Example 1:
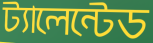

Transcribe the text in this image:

ট্যালেন্টেড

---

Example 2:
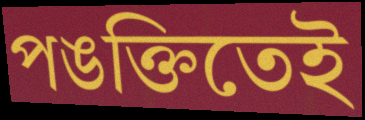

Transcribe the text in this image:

পঙক্তিতেই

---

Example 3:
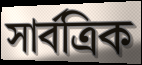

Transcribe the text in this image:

সার্বত্রিক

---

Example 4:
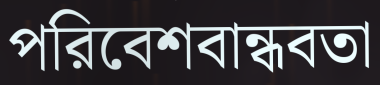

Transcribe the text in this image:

পরিবেশবান্ধবতা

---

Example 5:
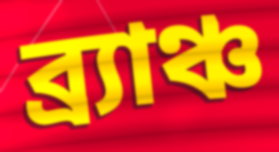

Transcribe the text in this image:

ব্র্যাঞ্চ